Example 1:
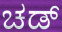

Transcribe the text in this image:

ಚಡ್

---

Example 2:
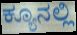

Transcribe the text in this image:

ಕ್ಯೂನಲ್ಲಿ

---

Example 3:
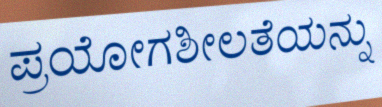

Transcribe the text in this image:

ಪ್ರಯೋಗಶೀಲತೆಯನ್ನು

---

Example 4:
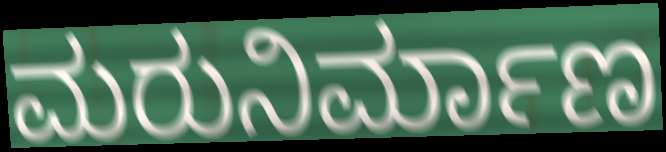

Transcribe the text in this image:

ಮರುನಿರ್ಮಾಣ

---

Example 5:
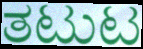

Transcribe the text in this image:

ತಟುಟ